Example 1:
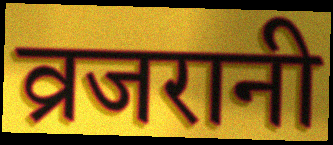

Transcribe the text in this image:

व्रजरानी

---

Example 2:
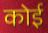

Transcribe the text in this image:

कोई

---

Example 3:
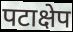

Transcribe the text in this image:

पटाक्षेप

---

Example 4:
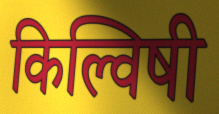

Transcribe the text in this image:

किल्विषी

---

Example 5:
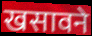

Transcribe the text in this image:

खसावने